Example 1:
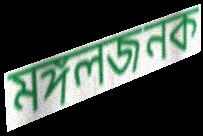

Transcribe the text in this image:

মঙ্গলজনক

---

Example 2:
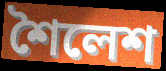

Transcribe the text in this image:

শৈলেশ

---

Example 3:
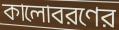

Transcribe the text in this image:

কালোবরণের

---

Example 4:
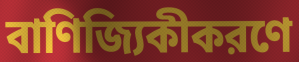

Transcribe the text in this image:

বাণিজ্যিকীকরণে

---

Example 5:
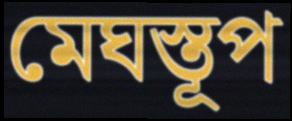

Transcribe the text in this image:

মেঘস্তূপ